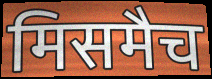
मिसमैच